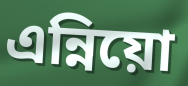
এন্নিয়ো